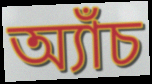
অ্যাঁচ